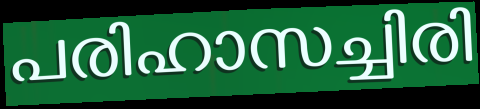
പരിഹാസച്ചിരി